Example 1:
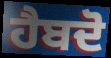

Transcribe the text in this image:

ਹੈਬਦੋ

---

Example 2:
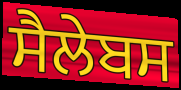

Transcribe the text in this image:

ਸੈਲੇਬਸ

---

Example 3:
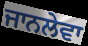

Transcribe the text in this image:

ਜਾਨਲੇਵਾ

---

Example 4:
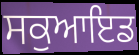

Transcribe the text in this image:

ਸਕੁਆਇਡ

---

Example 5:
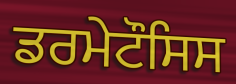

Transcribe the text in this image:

ਡਰਮੇਟੌਸਿਸ